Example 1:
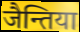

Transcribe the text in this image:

जैन्तिया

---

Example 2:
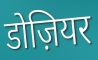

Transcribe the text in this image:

डोज़ियर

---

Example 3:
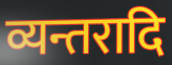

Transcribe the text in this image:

व्यन्तरादि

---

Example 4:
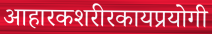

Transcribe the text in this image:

आहारकशरीरकायप्रयोगी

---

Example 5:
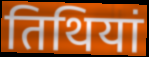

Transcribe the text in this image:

तिथियां